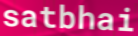
satbhai